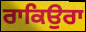
ਰਾਕਿਉਰਾ